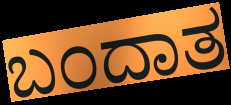
ಬಂದಾತ